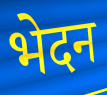
भेदन